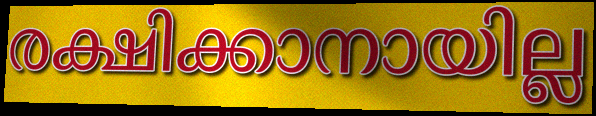
രക്ഷിക്കാനായില്ല